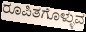
ರೂಪಿತಗೊಳ್ಳುವ